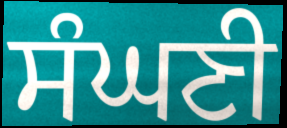
ਸੰਘਣੀ